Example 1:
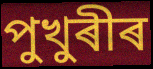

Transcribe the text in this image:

পুখুৰীৰ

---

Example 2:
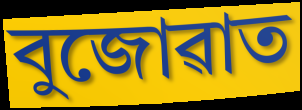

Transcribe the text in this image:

বুজোৱাত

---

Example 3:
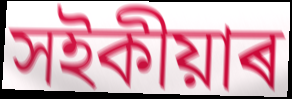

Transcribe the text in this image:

সইকীয়াৰ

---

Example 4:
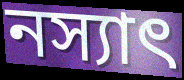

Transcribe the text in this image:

নস্যাৎ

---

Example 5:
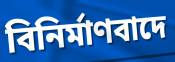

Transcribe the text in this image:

বিনিৰ্মাণবাদে